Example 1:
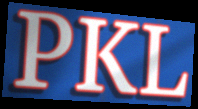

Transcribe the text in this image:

PKL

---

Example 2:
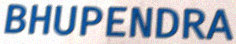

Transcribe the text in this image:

BHUPENDRA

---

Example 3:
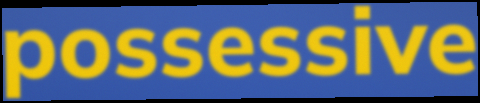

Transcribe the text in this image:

possessive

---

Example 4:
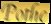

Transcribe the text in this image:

Pothe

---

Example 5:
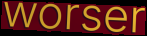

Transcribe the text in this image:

worser